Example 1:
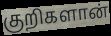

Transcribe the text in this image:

குறிகளான்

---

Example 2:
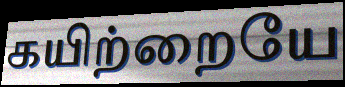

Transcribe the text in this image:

கயிற்றையே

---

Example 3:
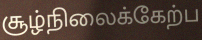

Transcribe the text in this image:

சூழ்நிலைக்கேற்ப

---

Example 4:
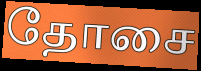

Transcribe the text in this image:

தோசை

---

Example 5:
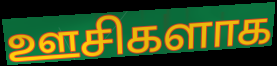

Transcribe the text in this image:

ஊசிகளாக